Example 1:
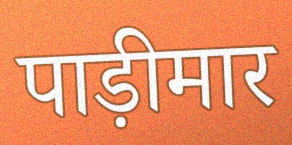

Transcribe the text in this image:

पाड़ीमार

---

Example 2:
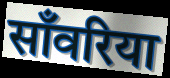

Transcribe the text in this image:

साँवरिया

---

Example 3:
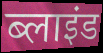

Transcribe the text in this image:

ब्लाइंड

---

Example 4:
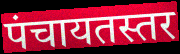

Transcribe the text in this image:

पंचायतस्तर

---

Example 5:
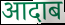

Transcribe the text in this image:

आदाब